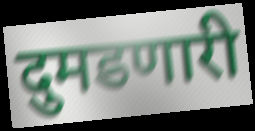
दुमडणारी